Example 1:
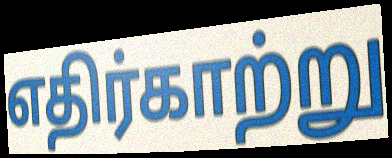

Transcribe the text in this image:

எதிர்காற்று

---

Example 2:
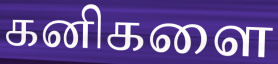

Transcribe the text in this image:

கனிகளை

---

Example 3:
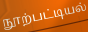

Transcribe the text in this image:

நூற்பட்டியல்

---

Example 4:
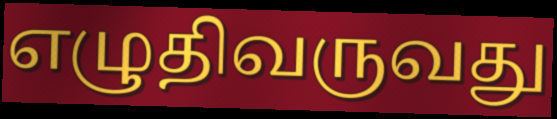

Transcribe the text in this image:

எழுதிவருவது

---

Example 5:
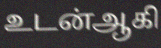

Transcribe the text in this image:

உடன்ஆகி